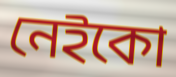
নেইকো